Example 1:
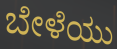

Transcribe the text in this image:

ಬೇಳೆಯು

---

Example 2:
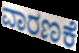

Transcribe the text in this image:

ವಾರಣಕೆ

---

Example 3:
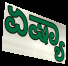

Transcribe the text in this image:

ಏಷ್ಯಾ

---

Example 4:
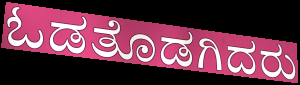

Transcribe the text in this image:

ಓಡತೊಡಗಿದರು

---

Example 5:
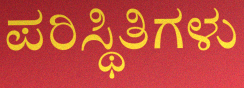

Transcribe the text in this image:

ಪರಿಸ್ಥಿತಿಗಳು